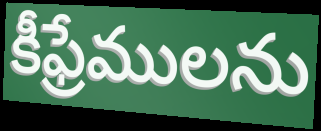
కీఫ్రేములను